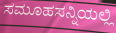
ಸಮೂಹಸನ್ನಿಯಲ್ಲಿ